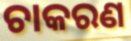
ଚାକରଣ